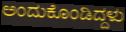
ಅಂದುಕೊಂಡಿದ್ದಳು